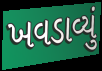
ખવડાવ્યું